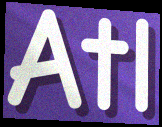
Atl